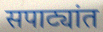
सपाट्यांत